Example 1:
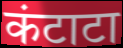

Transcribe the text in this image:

कंटाटा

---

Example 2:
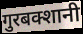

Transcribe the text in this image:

गुरबक्शानी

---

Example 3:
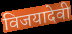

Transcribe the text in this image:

विजयादेवी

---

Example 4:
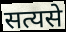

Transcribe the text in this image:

सत्यसे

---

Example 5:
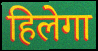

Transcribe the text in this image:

हिलेगा